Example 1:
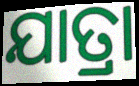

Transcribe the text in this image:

ଯାତ୍ରା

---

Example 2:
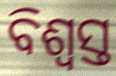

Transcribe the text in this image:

ବିଶ୍ୱସ୍ତ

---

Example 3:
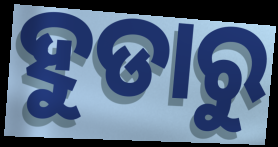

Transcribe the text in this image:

ହୁଡାରୁ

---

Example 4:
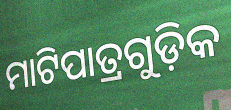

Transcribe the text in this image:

ମାଟିପାତ୍ରଗୁଡ଼ିକ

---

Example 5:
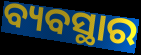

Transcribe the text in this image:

ବ୍ୟବସ୍ଥାର